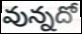
వున్నదో